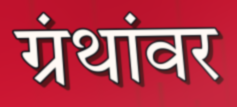
ग्रंथांवर